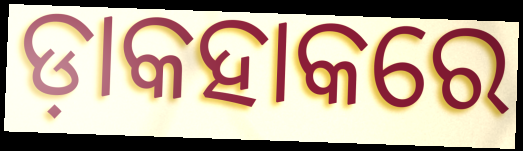
ଡ଼ାକହାକରେ